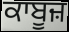
ਕਾਬੂਜ਼